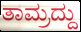
ತಾಮ್ರದ್ದು